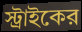
স্ট্রাইকের